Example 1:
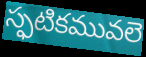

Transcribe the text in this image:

స్ఫటికమువలె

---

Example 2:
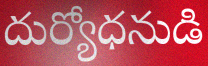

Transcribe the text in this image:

దుర్యోధనుడి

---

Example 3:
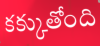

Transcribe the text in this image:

కక్కుతోంది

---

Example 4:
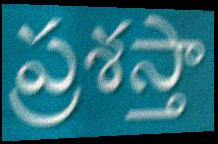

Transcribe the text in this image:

ప్రశస్తా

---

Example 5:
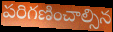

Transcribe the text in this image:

పరిగణించాల్సిన